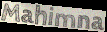
Mahimna